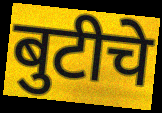
बुटीचे